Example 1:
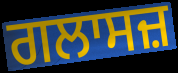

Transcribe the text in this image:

ਗਲਾਸਜ਼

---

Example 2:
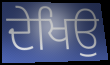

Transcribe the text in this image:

ਦੇਖਿਉ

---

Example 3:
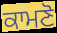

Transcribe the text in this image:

ਕਾਮਣੋ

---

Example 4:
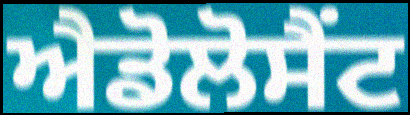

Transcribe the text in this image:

ਐਡੋਲੋਸੈਂਟ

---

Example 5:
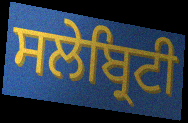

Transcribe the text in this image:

ਸਲੇਬ੍ਰਿਟੀ